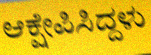
ಆಕ್ಷೇಪಿಸಿದ್ದಳು